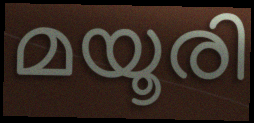
മയൂരി